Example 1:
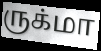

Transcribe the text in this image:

ருக்மா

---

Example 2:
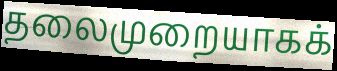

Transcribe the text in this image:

தலைமுறையாகக்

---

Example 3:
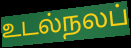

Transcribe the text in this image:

உடல்நலப்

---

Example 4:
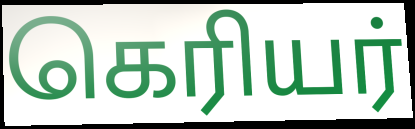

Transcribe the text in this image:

கெரியர்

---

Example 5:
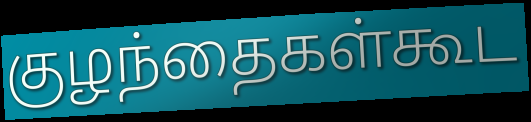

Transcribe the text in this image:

குழந்தைகள்கூட